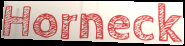
Horneck